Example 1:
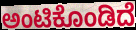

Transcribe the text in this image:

ಅಂಟಿಕೊಂಡಿದೆ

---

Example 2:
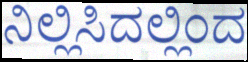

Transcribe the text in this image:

ನಿಲ್ಲಿಸಿದಲ್ಲಿಂದ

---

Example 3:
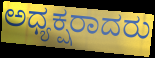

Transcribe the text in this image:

ಅಧ್ಯಕ್ಷರಾದರು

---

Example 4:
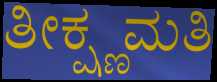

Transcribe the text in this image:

ತೀಕ್ಷ್ಣಮತಿ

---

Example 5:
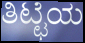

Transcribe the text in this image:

ತಿಟ್ಟೆಯ